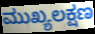
ಮುಖ್ಯಲಕ್ಷಣ